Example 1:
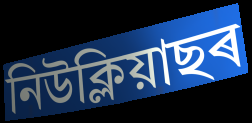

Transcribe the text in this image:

নিউক্লিয়াছৰ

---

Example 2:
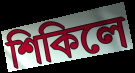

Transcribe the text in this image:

শিকিলে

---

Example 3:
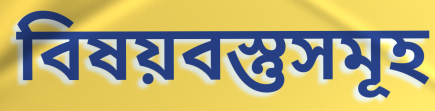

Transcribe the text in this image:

বিষয়বস্তুসমূহ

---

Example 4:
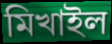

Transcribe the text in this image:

মিখাইল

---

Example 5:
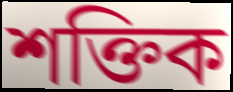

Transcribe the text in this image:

শক্তিক